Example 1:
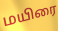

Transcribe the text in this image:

மயிரை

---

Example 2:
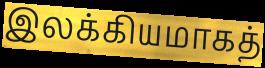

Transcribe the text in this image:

இலக்கியமாகத்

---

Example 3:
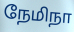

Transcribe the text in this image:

நேமிநா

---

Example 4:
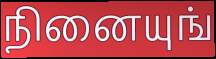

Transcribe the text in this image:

நினையுங்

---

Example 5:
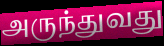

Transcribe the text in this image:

அருந்துவது